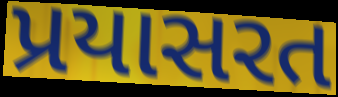
પ્રયાસરત